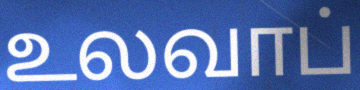
உலவாப்